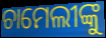
ଚାମେଲୀଙ୍କୁ